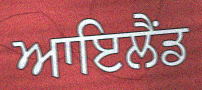
ਆਇਲੈੰਡ